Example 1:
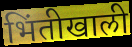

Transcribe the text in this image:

भिंतीखाली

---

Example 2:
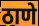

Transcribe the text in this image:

ठाणे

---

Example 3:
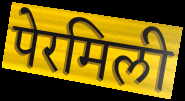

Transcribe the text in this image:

पेरमिली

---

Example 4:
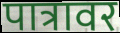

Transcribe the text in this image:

पात्रावर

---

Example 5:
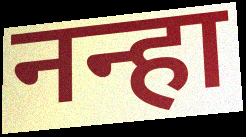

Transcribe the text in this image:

नन्हा